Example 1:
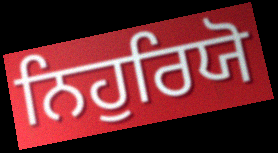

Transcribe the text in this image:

ਨਿਹੁਰਿਯੋ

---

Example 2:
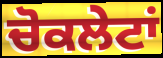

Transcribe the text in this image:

ਚੋਕਲੇਟਾਂ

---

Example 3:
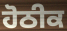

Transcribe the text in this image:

ਹੋਠੀਕ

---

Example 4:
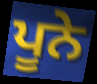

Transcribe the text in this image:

ਪੂਨੇ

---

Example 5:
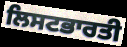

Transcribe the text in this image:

ਲਿਸਟਭਾਰਤੀ